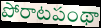
పోరాటపంథా